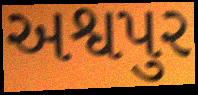
અશ્વપુર